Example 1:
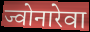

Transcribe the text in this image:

ज्वोनारेवा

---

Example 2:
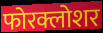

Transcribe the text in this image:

फोरक्लोशर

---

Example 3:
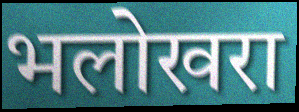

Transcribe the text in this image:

भलोखरा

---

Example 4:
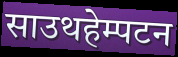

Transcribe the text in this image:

साउथहेम्पटन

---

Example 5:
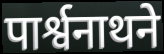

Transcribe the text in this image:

पार्श्वनाथने